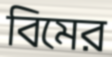
বিমের